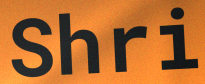
Shri